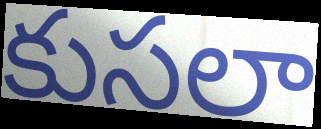
కుసలా